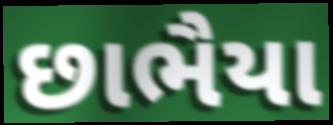
છાભૈયા